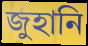
জুহানি